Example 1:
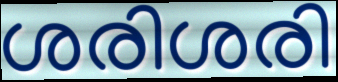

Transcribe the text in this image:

ശരിശരി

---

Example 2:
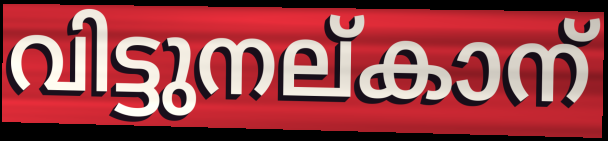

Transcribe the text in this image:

വിട്ടുനല്കാന്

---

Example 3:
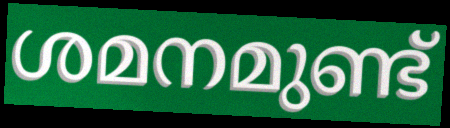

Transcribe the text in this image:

ശമനമുണ്ട്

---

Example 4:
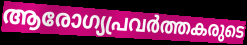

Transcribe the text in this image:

ആരോഗ്യപ്രവർത്തകരുടെ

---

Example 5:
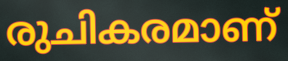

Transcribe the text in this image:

രുചികരമാണ്